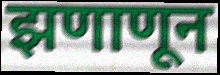
झणाणून